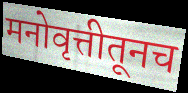
मनोवृत्तीतूनच